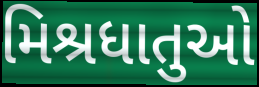
મિશ્રધાતુઓ